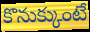
కొనుక్కుంటే